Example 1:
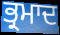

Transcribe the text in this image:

ਭ੍ਰਮਾਦ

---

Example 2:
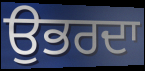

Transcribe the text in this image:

ਉਭਰਦਾ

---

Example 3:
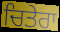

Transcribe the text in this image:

ਚਿਤੇਰਾ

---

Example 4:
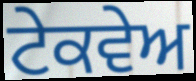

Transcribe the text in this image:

ਟੇਕਵੇਅ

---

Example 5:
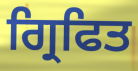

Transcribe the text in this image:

ਗ੍ਰਿਫਿਤ